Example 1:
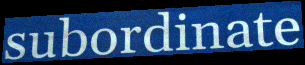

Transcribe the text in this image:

subordinate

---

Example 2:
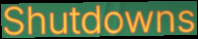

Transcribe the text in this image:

Shutdowns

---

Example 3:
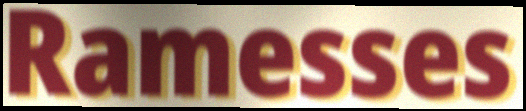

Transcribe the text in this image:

Ramesses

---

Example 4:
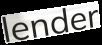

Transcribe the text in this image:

lender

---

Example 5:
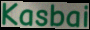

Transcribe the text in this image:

Kasbai